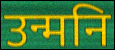
उन्मनि